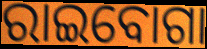
ରାଇବୋଗା